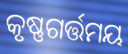
କୃଷ୍ଣଗର୍ତ୍ତମୟ